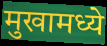
मुखामध्ये